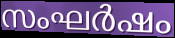
സംഘർഷം